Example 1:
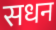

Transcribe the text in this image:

सधन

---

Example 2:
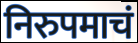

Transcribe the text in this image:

निरुपमाचं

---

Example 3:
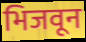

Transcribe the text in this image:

भिजवून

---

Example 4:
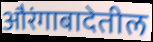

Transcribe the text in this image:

औरंगाबादेतील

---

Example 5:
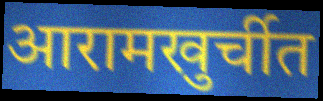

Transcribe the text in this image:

आरामखुर्चीत